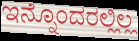
ಇನ್ನೊಂದರಲ್ಲಿಲ್ಲ